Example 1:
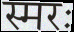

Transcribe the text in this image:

स्मरः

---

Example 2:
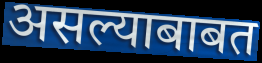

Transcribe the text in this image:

असल्याबाबत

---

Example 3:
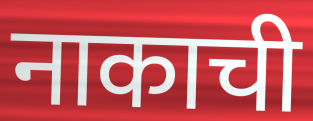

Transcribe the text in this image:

नाकाची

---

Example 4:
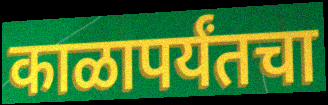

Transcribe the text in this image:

काळापर्यंतचा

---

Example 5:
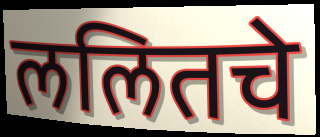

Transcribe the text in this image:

ललितचे